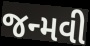
જન્મવી